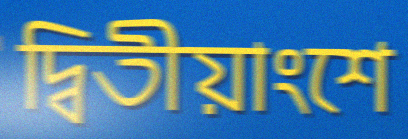
দ্বিতীয়াংশে